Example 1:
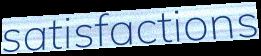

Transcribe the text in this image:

satisfactions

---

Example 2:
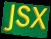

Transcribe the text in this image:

JSX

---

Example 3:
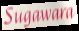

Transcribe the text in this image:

Sugawara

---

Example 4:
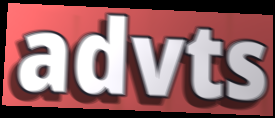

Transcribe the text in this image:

advts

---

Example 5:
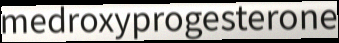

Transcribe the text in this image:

medroxyprogesterone